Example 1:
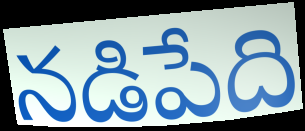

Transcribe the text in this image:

నడిపేది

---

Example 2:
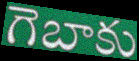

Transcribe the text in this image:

గెబాకు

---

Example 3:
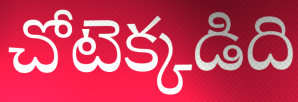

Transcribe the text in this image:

చోటెక్కడిది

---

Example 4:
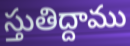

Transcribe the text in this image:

స్తుతిద్దాము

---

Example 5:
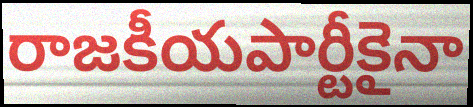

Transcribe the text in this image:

రాజకీయపార్టీకైనా